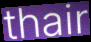
thair